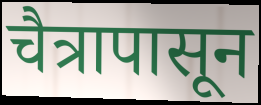
चैत्रापासून